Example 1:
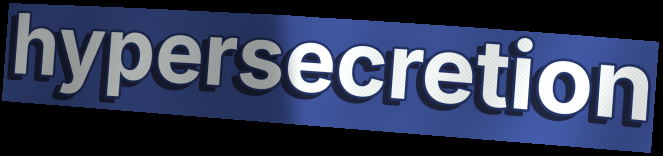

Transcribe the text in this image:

hypersecretion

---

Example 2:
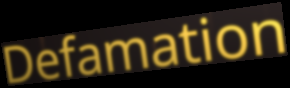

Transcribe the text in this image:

Defamation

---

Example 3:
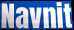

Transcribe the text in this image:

Navnit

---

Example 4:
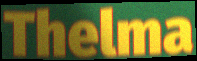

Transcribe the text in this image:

Thelma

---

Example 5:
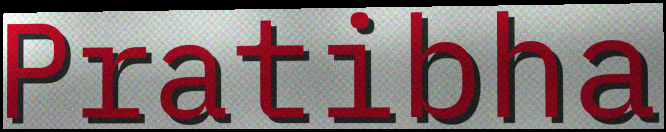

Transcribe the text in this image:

Pratibha